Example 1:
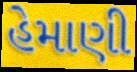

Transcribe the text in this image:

હેમાણી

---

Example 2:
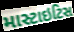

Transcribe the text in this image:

માસ્ટાઇટિસ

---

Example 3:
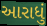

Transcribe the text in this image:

આરાધું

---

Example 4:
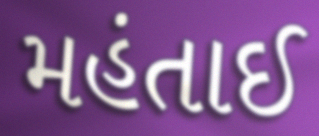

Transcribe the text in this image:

મહંતાઈ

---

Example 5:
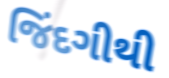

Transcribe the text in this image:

જિંદગીથી